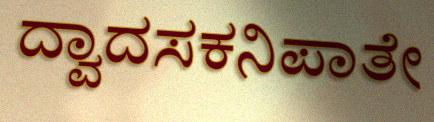
ದ್ವಾದಸಕನಿಪಾತೇ